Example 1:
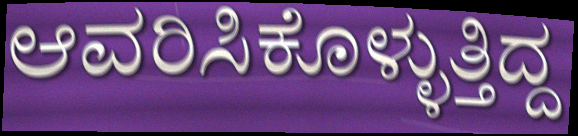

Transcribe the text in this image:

ಆವರಿಸಿಕೊಳ್ಳುತ್ತಿದ್ದ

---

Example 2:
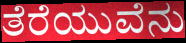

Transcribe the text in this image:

ತೆರೆಯುವೆನು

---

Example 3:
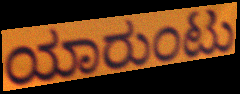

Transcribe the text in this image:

ಯಾರುಂಟು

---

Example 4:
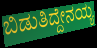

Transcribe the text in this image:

ಬಿಡುತಿದ್ದೇನಯ್ಯ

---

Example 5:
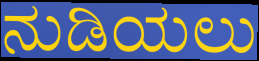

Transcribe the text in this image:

ನುಡಿಯಲು